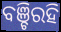
ବଞ୍ଚିରହି